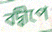
বদ্বীপে